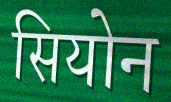
सियोन